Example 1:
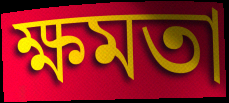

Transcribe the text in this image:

ক্ষমতা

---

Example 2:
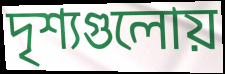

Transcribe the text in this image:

দৃশ্যগুলোয়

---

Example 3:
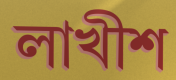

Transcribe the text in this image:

লাখীশ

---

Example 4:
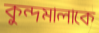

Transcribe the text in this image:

কুন্দমালাকে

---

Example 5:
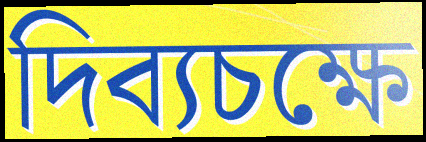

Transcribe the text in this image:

দিব্যচক্ষে